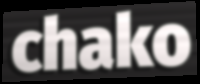
chako